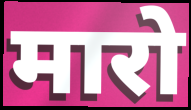
मारो